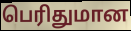
பெரிதுமான